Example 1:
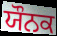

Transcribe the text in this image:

ਯੌਨਕ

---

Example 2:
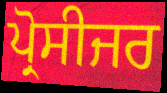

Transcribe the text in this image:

ਪ੍ਰੋਸੀਜਰ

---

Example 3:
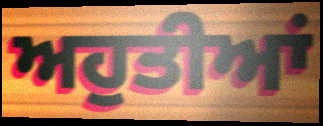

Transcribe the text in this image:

ਅਹੁਤੀਆਂ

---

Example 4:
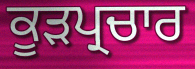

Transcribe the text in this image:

ਕੂੜਪ੍ਰਚਾਰ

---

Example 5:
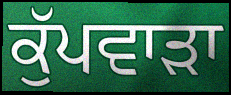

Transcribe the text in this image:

ਕੁੱਪਵਾੜਾ